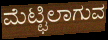
ಮೆಟ್ಟಿಲಾಗುವ